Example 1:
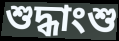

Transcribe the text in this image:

শুদ্ধাংশু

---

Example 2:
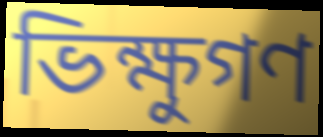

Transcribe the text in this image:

ভিক্ষুগণ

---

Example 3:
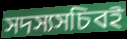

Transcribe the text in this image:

সদস্যসচিবই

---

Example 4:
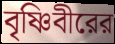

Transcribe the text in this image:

বৃষ্ণিবীরের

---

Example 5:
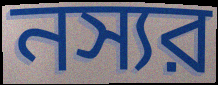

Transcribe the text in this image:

নস্যর